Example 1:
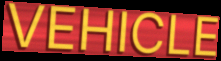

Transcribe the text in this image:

VEHICLE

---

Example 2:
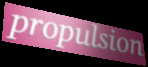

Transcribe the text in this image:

propulsion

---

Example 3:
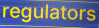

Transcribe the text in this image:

regulators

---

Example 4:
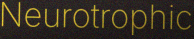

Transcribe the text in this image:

Neurotrophic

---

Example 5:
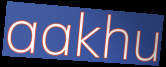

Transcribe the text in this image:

aakhu